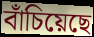
বাঁচিয়েছে